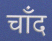
चाँद